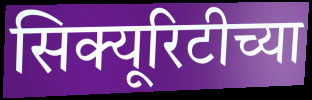
सिक्यूरिटीच्या